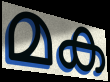
മക